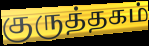
குருத்தகம்